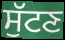
ਸੁੱਟਣ